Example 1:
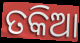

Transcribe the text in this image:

ତକିଆ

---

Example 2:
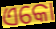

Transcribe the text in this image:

ଏକୋ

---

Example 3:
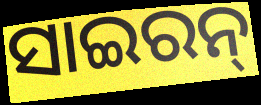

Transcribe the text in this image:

ସାଇରନ୍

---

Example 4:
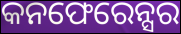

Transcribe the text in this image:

କନଫେରେନ୍ସର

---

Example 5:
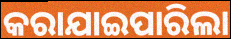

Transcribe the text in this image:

କରାଯାଇପାରିଲା